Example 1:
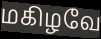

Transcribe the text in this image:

மகிழவே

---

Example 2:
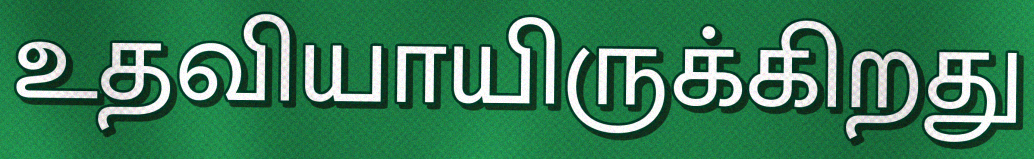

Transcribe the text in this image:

உதவியாயிருக்கிறது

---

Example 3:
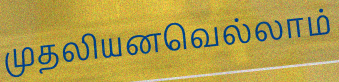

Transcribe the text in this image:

முதலியனவெல்லாம்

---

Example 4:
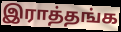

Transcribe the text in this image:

இராத்தங்க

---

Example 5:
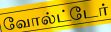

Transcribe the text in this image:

வோல்ட்டேர்